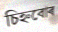
চিহ্নবোৰ